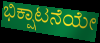
ಭಿಕ್ಷಾಟನೆಯೇ